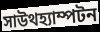
সাউথহ্যাম্পটন